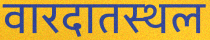
वारदातस्थल